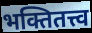
भक्तितत्त्व